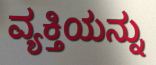
ವ್ಯಕ್ತಿಯನ್ನು